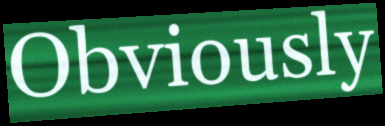
Obviously